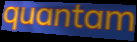
quantam